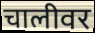
चालीवर